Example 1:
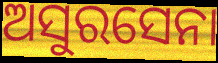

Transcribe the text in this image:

ଅସୁରସେନା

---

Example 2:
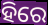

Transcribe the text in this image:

ହିରେ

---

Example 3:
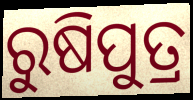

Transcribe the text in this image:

ରୁଷିପୁତ୍ର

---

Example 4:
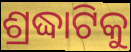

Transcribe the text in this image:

ଶ୍ରଦ୍ଧାଟିକୁ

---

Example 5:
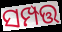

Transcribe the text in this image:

ସମ୍ପତ୍ତ